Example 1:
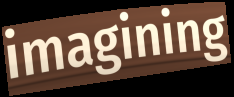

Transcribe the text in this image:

imagining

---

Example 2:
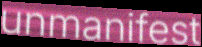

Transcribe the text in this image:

unmanifest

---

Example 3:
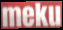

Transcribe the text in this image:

meku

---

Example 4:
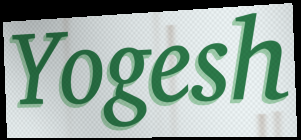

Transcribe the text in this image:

Yogesh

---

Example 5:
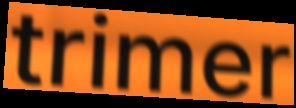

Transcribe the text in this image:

trimer